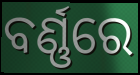
ବର୍ଣ୍ଣରେ